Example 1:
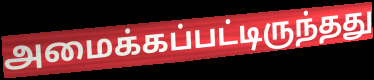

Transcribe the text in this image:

அமைக்கப்பட்டிருந்தது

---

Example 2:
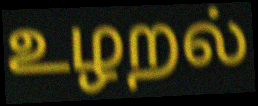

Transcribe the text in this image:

உழறல்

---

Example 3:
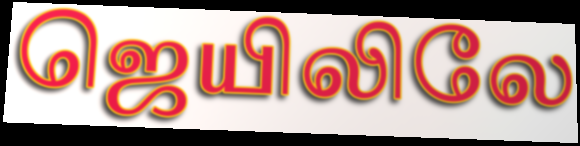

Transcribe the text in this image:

ஜெயிலிலே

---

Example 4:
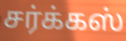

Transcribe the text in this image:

சர்க்கஸ்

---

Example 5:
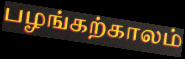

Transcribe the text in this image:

பழங்கற்காலம்